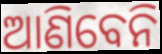
ଆଣିବେନି